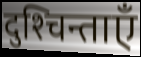
दुश्चिन्ताएँ